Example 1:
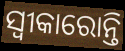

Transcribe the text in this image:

ସ୍ଵୀକାରୋନ୍ତି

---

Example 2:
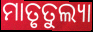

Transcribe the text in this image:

ମାତୃତୁଲ୍ୟା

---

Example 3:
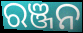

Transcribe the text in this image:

ରଞ୍ଜନ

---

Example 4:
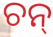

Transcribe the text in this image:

ଚନ୍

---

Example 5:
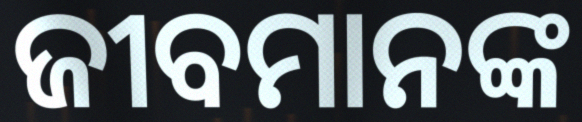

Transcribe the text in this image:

ଜୀବମାନଙ୍କ